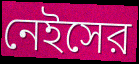
নেইসের